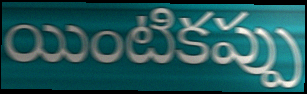
యింటికప్పు